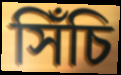
সিঁচি